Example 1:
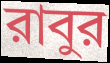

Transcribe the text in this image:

রাবুর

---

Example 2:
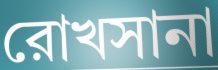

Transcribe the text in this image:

রোখসানা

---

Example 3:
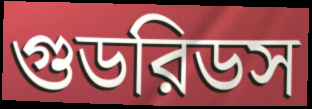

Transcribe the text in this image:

গুডরিডস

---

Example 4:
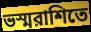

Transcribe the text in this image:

ভস্মরাশিতে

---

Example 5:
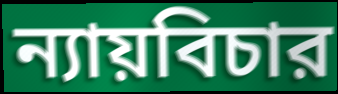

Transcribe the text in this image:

ন্যায়বিচার